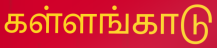
கள்ளங்காடு